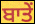
ਬਾਤੇਂ